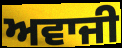
ਅਵਾਜੀ